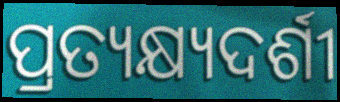
ପ୍ରତ୍ୟକ୍ଷ୍ୟଦର୍ଶୀ